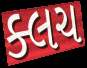
ક્લચ